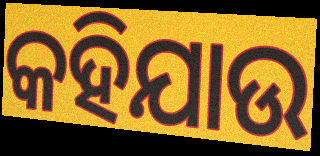
କହିଯାଉ